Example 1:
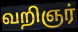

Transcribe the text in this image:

வறிஞர்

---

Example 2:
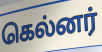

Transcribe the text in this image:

கெல்னர்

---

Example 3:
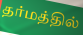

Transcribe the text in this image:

தர்மத்தில்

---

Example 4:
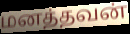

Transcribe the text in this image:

மனத்தவன்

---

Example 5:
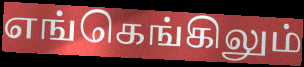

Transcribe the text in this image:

எங்கெங்கிலும்